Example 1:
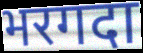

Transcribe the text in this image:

भरगदा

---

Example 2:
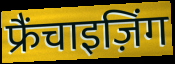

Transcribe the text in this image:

फ्रैंचाइज़िंग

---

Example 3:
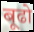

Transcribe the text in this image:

बूढो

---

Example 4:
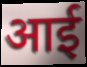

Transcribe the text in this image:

आई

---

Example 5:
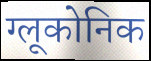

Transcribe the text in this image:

ग्लूकोनिक